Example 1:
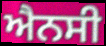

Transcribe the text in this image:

ਐਨਸੀ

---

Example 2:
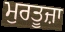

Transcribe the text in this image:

ਮੁਰਤੂਜ਼ਾ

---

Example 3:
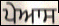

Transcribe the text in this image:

ਪੇਆਸ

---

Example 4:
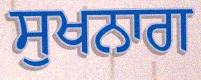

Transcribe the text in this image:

ਸੁਖਨਾਗ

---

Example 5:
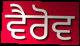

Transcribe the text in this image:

ਵੈਰੋਵ